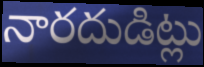
నారదుడిట్లు